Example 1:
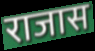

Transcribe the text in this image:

राजास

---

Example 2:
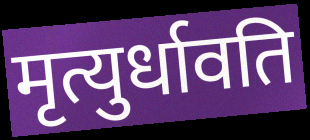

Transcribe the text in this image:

मृत्युर्धावति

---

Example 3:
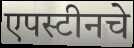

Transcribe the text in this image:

एपस्टीनचे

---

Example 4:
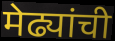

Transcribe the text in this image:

मेढ्यांची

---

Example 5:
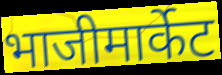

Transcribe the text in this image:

भाजीमार्केट